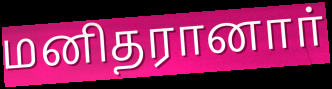
மனிதரானார்